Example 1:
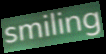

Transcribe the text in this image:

smiling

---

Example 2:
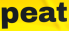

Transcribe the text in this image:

peat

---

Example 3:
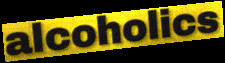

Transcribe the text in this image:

alcoholics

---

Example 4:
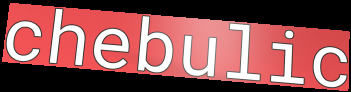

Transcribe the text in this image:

chebulic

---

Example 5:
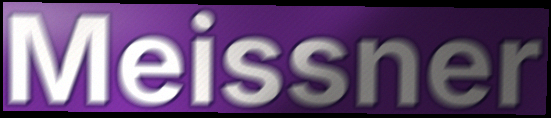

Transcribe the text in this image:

Meissner